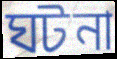
ঘটনা